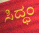
ಸಿದ್ಧಂ